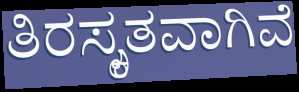
ತಿರಸ್ಕೃತವಾಗಿವೆ